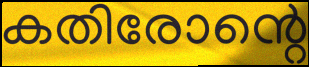
കതിരോന്റെ